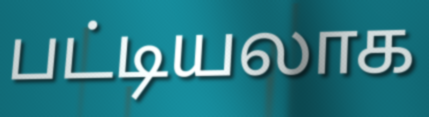
பட்டியலாக